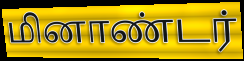
மினாண்டர்